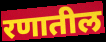
रणातील